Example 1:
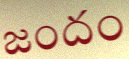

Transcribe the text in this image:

జందం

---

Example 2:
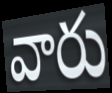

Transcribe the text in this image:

వారు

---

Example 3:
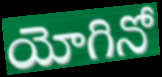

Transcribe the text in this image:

యోగినో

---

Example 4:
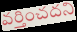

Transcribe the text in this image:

వర్తించదని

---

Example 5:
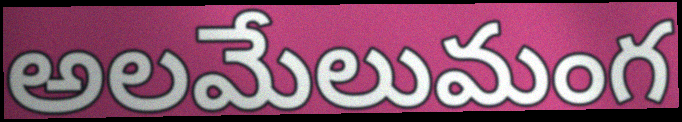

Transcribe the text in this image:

అలమేలుమంగ